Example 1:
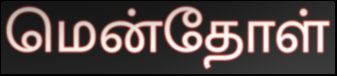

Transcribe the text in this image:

மென்தோள்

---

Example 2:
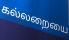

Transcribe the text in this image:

கல்லறையை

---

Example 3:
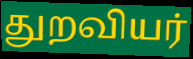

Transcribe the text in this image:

துறவியர்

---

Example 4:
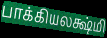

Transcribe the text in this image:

பாக்கியலக்ஷ்மி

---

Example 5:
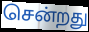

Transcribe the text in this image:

சென்றது